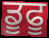
ਡੂਫੂ